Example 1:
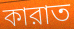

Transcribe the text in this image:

কারাত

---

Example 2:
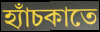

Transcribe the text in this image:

হ্যাঁচকাতে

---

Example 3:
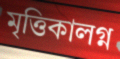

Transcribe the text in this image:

মৃত্তিকালগ্ন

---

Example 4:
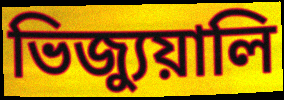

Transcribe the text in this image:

ভিজ্যুয়ালি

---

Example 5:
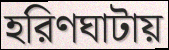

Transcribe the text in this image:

হরিণঘাটায়